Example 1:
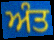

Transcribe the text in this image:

ਅੰਤ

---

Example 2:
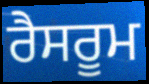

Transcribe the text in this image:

ਰੈਸਰੂਮ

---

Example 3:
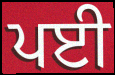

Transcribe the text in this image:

ਪਈ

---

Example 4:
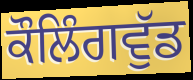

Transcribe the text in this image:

ਕੌਲਿੰਗਵੁੱਡ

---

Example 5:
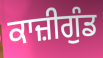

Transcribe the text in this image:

ਕਾਜ਼ੀਗੁੰਡ